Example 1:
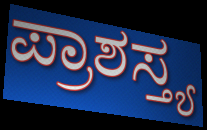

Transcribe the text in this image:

ಪ್ರಾಶಸ್ತ್ಯ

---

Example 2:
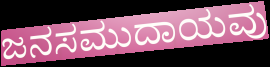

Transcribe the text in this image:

ಜನಸಮುದಾಯವು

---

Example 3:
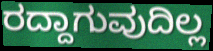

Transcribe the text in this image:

ರದ್ದಾಗುವುದಿಲ್ಲ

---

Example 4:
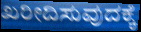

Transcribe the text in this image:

ಖರೀದಿಸುವುದಕ್ಕೆ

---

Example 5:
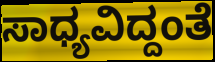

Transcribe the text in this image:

ಸಾಧ್ಯವಿದ್ದಂತೆ